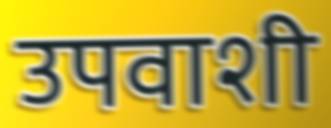
उपवाशी